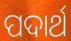
ପଦାର୍ଥ